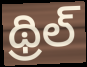
థ్రిల్